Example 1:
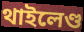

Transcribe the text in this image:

থাইলেণ্ড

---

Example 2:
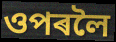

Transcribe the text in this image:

ওপৰলৈ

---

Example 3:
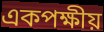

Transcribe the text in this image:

একপক্ষীয়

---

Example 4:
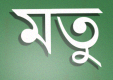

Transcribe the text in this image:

মতু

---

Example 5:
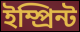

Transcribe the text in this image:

ইম্প্ৰিন্ট